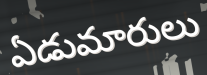
ఏడుమారులు